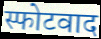
स्फोटवाद